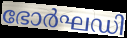
ഭോർഘഡി